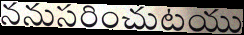
ననుసరించుటయు